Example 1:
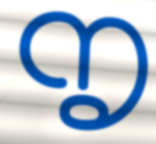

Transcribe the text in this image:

നൃ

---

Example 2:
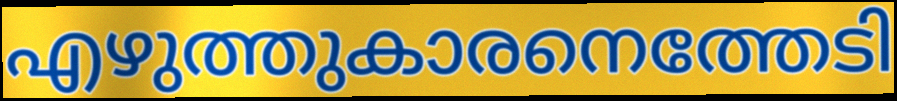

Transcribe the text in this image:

എഴുത്തുകാരനെത്തേടി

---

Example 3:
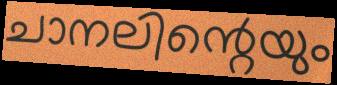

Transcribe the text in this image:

ചാനലിന്റെയും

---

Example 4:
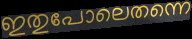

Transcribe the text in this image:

ഇതുപോലെതന്നെ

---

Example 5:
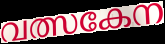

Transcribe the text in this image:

വത്സകേന